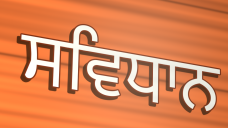
ਸਵਿਧਾਨ